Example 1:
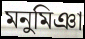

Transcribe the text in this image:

মনুমিঞা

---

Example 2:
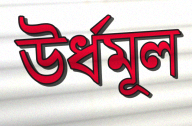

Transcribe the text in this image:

উর্ধমূল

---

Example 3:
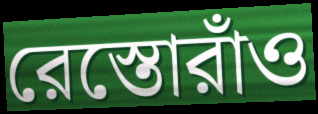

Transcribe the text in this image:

রেস্তোরাঁও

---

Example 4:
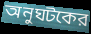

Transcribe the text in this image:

অনুঘটকের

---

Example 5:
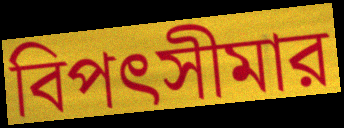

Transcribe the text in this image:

বিপৎসীমার